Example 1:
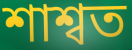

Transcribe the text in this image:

শাশ্বত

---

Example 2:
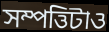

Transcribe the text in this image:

সম্পত্তিটাও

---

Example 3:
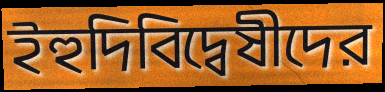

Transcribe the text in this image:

ইহুদিবিদ্বেষীদের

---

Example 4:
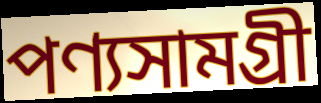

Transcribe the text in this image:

পণ্যসামগ্রী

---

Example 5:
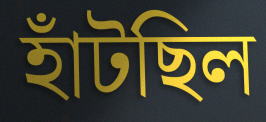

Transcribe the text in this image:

হাঁটছিল